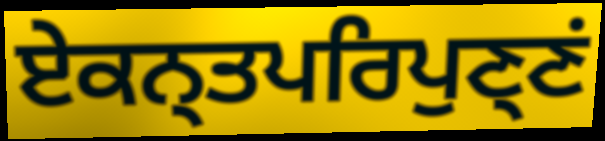
ਏਕਨ੍ਤਪਰਿਪੁਣ੍ਣਂ